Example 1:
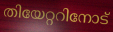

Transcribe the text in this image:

തിയേറ്ററിനോട്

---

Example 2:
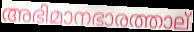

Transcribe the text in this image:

അഭിമാനഭാരത്താല്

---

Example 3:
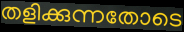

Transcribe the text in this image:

തളിക്കുന്നതോടെ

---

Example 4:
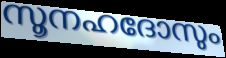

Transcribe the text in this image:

സൂനഹദോസും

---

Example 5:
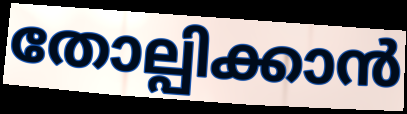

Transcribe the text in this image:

തോല്പിക്കാൻ